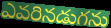
ఎవరినడుగను